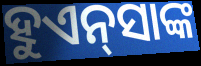
ହୁଏନ୍‍ସାଙ୍କ